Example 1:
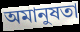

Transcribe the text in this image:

অমানুষতা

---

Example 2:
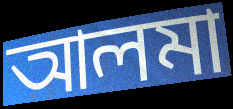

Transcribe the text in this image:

আলমা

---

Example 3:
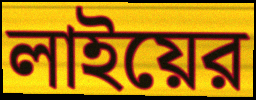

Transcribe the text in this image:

লাইয়ের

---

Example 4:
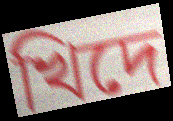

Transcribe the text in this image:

খিদে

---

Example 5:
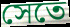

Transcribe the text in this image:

সেতে